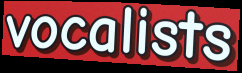
vocalists